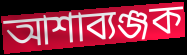
আশাব্যঞ্জক